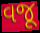
વજૂ